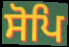
ਸੋਪਿ